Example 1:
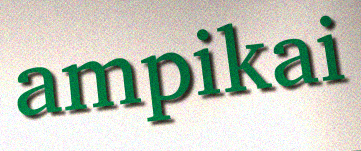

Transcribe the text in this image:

ampikai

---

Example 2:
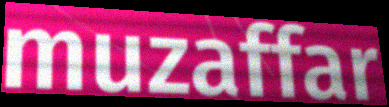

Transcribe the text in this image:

muzaffar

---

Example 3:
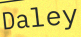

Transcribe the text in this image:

Daley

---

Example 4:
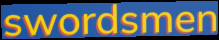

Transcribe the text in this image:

swordsmen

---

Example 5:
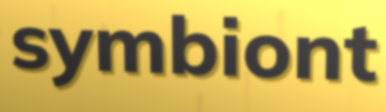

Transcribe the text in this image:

symbiont